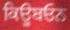
ਕਿਊਬਓਨ